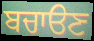
ਬਚਾੳਣ